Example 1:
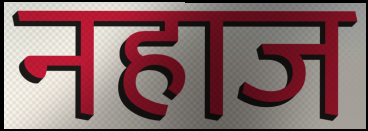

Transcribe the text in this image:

नहाज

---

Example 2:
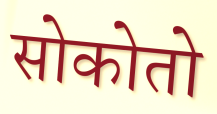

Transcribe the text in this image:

सोकोतो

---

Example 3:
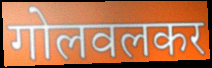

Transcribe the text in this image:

गोलवलकर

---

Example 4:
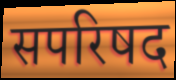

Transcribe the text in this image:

सपरिषद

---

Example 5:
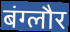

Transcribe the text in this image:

बंग्लौर